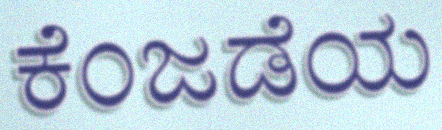
ಕೆಂಜಡೆಯ